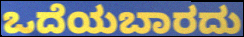
ಒದೆಯಬಾರದು